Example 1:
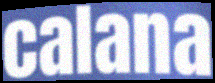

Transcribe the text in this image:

calana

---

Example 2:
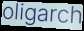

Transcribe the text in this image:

oligarch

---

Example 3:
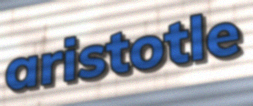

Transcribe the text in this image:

aristotle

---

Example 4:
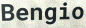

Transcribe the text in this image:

Bengio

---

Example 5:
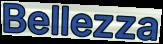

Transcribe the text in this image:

Bellezza